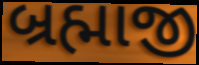
બ્રહ્માજી